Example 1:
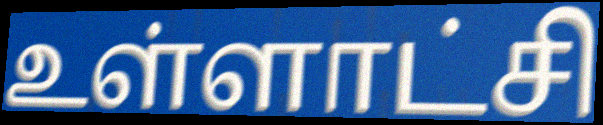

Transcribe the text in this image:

உள்ளாட்சி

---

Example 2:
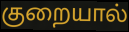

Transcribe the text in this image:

குறையால்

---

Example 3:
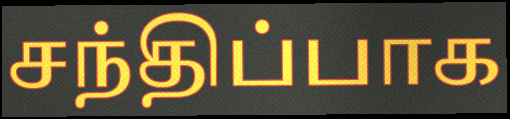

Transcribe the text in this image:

சந்திப்பாக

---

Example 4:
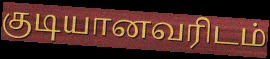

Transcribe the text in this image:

குடியானவரிடம்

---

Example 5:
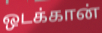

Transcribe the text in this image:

ஒடக்கான்